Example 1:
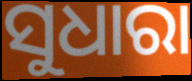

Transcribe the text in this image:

ସୁଧାରା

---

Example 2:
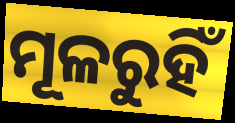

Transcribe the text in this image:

ମୂଳରୁହିଁ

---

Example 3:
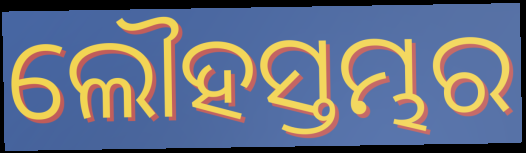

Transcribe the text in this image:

ଲୌହସ୍ତମ୍ଭର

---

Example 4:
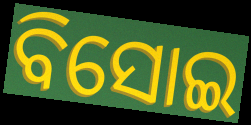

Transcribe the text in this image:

ବିସୋଇ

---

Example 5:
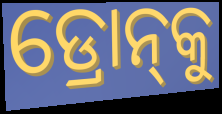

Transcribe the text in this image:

ଡ୍ରୋନ୍‌କୁ